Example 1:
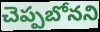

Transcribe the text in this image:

చెప్పబోనని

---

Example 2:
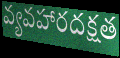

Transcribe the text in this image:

వ్యవహారదక్షత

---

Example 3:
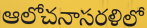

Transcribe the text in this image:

ఆలోచనాసరళిలో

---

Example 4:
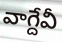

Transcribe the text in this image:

వాగ్దేవీ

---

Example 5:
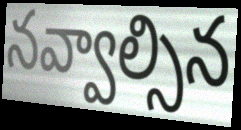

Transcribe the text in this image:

నవ్వాల్సిన